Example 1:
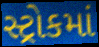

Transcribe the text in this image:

સ્ટ્રોકમાં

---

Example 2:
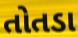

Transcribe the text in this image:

તોતડા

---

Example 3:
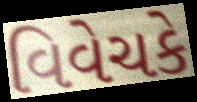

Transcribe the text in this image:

વિવેચકે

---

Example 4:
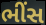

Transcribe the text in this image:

ભીંસ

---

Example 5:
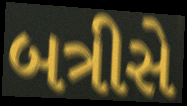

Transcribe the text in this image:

બત્રીસે